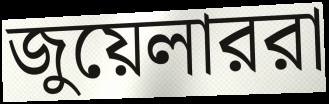
জুয়েলাররা